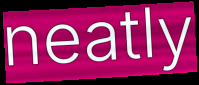
neatly